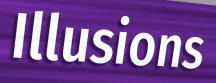
Illusions